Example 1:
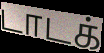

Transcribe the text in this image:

டாடக்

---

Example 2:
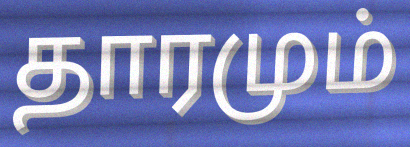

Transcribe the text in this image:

தாரமும்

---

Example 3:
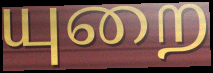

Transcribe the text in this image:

யுறை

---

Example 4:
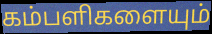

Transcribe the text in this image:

கம்பளிகளையும்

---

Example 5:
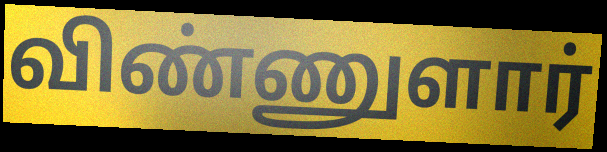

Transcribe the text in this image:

விண்ணுளார்